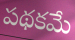
పథకమే